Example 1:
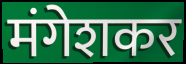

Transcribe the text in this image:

मंगेशकर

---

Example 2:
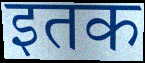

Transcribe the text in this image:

इतक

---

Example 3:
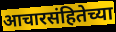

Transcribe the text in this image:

आचारसंहितेच्या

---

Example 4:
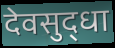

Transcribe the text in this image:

देवसुद्धा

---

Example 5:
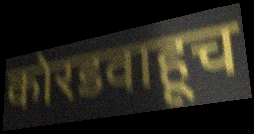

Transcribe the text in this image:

कोरडवाहूच